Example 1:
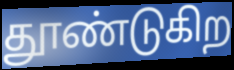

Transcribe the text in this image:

தூண்டுகிற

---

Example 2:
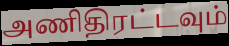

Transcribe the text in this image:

அணிதிரட்டவும்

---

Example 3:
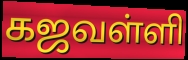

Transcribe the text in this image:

கஜவள்ளி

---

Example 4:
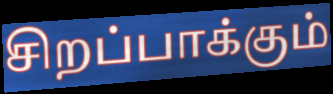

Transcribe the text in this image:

சிறப்பாக்கும்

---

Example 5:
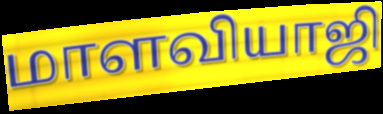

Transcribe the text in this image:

மாளவியாஜி